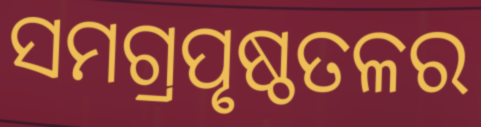
ସମଗ୍ରପୃଷ୍ଠତଳର